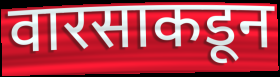
वारसाकडून